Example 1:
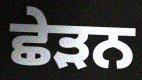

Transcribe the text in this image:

ਛੇੜਨ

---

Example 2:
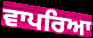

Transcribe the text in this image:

ਵਾਪਰਿਆ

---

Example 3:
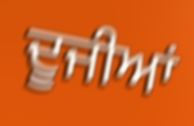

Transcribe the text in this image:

ਦੂਜੀਆਂ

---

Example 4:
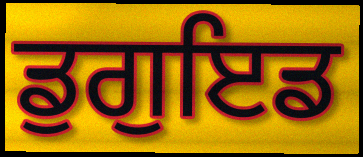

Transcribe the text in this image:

ਡੁਗੁਇਡ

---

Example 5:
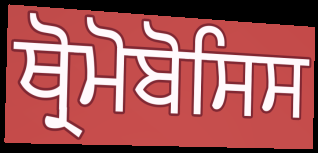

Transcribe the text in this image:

ਥ੍ਰੋਮੋਬੋਸਿਸ